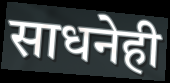
साधनेही